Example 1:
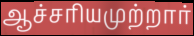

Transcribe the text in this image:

ஆச்சரியமுற்றார்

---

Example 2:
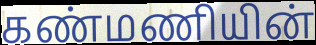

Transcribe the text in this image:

கண்மணியின்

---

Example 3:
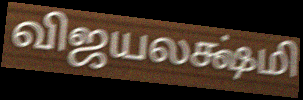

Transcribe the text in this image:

விஜயலக்ஷ்மி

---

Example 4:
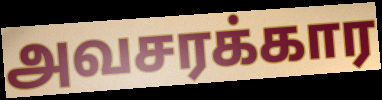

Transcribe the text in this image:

அவசரக்கார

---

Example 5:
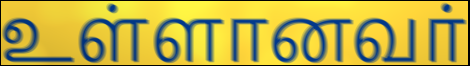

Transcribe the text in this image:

உள்ளானவர்